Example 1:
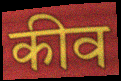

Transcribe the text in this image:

कीव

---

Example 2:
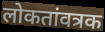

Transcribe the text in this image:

लोकतांवत्रक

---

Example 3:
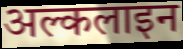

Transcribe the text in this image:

अल्कलाइन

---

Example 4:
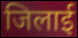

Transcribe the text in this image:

जिलाई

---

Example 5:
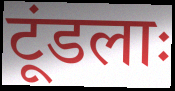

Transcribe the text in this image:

टूंडलाः